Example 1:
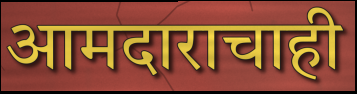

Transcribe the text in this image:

आमदाराचाही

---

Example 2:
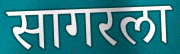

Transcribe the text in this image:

सागरला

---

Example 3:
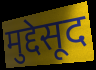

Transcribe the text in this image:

मुद्देसूद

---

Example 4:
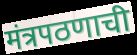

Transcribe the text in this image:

मंत्रपठणाची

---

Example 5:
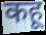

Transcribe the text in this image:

कहू